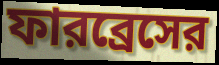
ফারব্রেসের